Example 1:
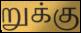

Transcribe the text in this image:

றுக்கு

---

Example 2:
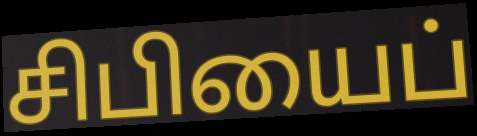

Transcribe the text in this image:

சிபியைப்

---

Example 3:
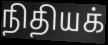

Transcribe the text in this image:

நிதியக்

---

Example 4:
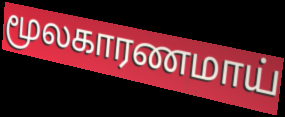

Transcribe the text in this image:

மூலகாரணமாய்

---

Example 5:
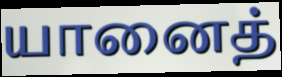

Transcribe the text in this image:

யானைத்